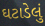
ઘટાડેલું